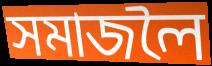
সমাজলৈ